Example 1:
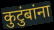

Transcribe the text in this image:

कुटुंबांना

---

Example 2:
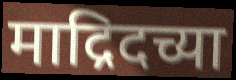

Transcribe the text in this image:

माद्रिदच्या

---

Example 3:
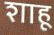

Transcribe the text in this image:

शाहू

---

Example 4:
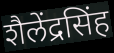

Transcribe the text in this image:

शैलेंद्रसिंह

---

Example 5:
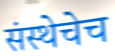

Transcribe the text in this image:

संस्थेचेच